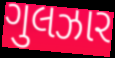
ગુલઝાર